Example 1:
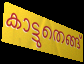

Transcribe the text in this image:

കാട്ടുതെങ്ങ്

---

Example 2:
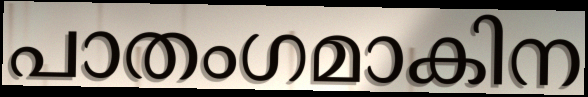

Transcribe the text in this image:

പാതംഗമാകിന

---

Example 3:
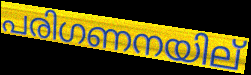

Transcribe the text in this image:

പരിഗണനയില്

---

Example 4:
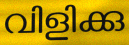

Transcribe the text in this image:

വിളിക്കു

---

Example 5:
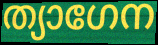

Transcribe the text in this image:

ത്യാഗേന